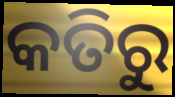
କତିରୁ